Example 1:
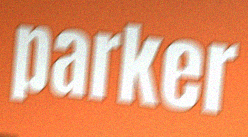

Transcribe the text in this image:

parker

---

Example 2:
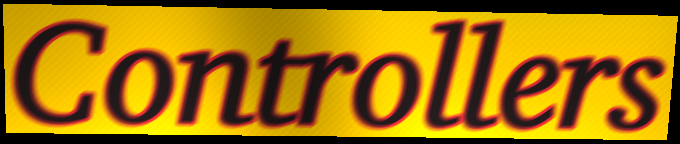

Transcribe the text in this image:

Controllers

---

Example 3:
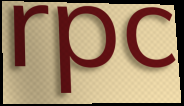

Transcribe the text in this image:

rpc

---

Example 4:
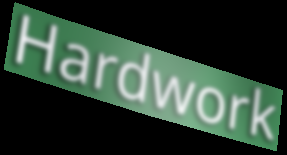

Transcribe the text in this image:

Hardwork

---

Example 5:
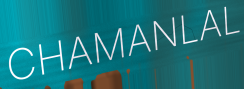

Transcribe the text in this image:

CHAMANLAL